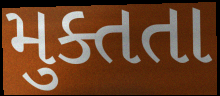
મુક્તતા